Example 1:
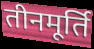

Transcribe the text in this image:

तीनमूर्ति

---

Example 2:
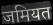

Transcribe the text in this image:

जमियत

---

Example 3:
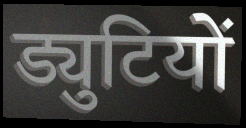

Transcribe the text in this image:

ड्युटियों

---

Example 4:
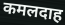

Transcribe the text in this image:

कमलदाह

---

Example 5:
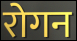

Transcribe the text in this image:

रोगन